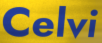
Celvi